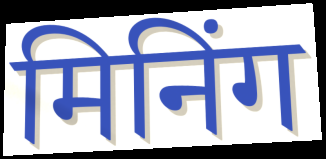
मिनिंग